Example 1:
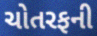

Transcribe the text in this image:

ચોતરફની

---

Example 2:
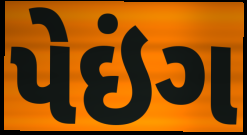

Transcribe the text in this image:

પેઇંગ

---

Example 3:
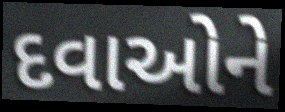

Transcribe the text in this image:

દવાઓને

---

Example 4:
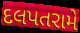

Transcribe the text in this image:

દલપતરામે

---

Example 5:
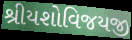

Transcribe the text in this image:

શ્રીયશોવિજયજી